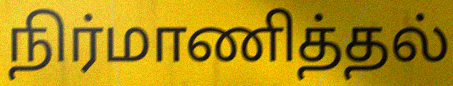
நிர்மாணித்தல்